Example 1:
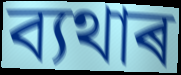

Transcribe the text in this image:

ব্যথাৰ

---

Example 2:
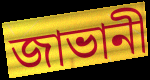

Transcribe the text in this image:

জাভানী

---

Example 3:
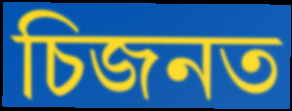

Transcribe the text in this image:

চিজনত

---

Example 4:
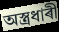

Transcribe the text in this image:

অস্ত্ৰধাৰী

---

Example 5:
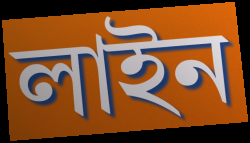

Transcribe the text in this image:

লাইন